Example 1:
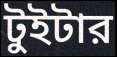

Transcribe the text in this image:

টুইটার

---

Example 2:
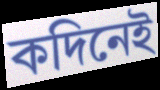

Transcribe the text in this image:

কদিনেই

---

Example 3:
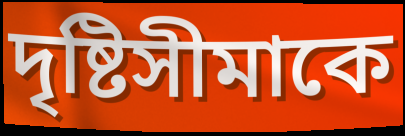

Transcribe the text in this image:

দৃষ্টিসীমাকে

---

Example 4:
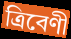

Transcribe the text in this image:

ত্রিবেণী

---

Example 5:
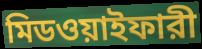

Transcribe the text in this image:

মিডওয়াইফারী